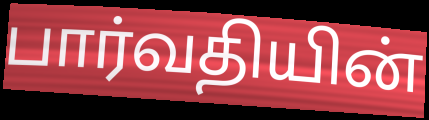
பார்வதியின்